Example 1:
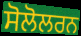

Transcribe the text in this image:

ਸੋਲੋਲਰਨ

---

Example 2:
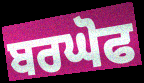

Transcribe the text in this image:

ਬਰਘੋਫ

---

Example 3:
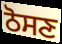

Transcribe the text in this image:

ਠੋਸਣ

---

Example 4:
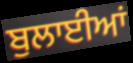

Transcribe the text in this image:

ਬੁਲਾਈਆਂ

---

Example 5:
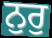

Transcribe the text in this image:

ਨੁਰੁ